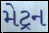
મેટ્રન